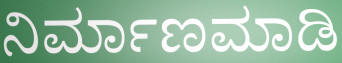
ನಿರ್ಮಾಣಮಾಡಿ